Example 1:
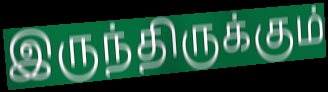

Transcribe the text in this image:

இருந்திருக்கும்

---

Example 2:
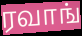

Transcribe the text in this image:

ரவாங்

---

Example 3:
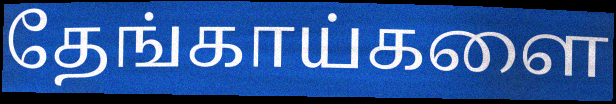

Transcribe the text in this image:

தேங்காய்களை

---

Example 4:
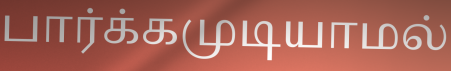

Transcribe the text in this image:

பார்க்கமுடியாமல்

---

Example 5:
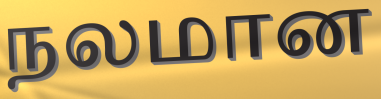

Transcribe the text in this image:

நலமான